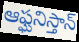
ఆఫ్ఘనిస్తాన్